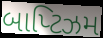
બાપ્ટિઝમ